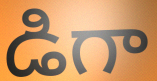
డిగా